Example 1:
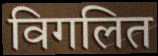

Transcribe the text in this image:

विगलित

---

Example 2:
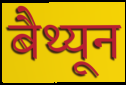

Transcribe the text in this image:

बैथ्यून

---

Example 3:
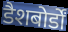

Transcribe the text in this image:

डैशबोर्डों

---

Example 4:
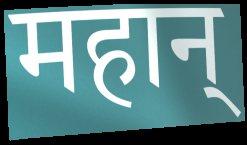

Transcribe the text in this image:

महान्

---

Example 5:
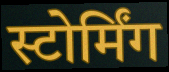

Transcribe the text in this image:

स्टोर्मिंग